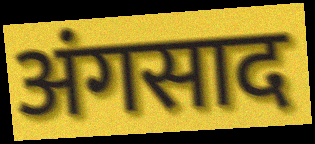
अंगसाद